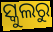
ସ୍କୁଲରୁ